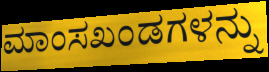
ಮಾಂಸಖಂಡಗಳನ್ನು